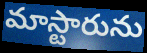
మాస్టారును